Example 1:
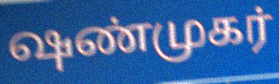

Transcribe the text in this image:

ஷண்முகர்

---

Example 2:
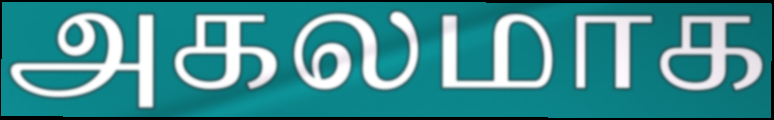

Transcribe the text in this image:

அகலமாக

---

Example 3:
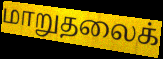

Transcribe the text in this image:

மாறுதலைக்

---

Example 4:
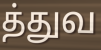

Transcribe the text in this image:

த்துவ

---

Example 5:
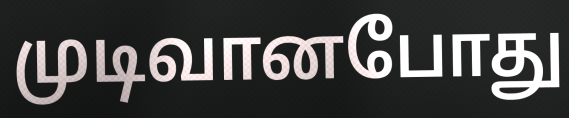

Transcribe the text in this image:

முடிவானபோது